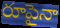
రూపైనా